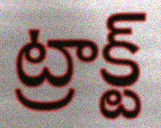
ట్రాక్ట్